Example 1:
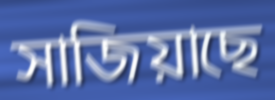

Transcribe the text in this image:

সাজিয়াছে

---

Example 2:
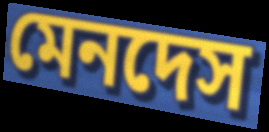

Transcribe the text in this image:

মেনদেস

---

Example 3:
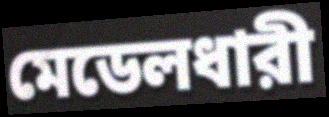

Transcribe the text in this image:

মেডেলধারী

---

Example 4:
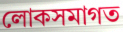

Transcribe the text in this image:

লোকসমাগত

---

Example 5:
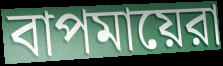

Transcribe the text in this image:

বাপমায়েরা